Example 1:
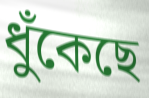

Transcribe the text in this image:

ধুঁকেছে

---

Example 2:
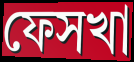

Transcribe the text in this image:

ফেসখা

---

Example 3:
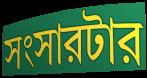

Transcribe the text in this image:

সংসারটার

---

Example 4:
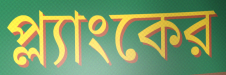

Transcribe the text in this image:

প্ল্যাংকের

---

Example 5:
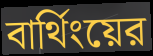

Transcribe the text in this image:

বার্থিংয়ের